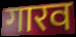
गारव